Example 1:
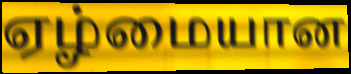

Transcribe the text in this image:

ஏழ்மையான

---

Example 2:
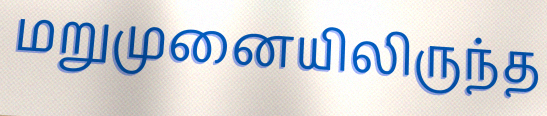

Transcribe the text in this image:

மறுமுனையிலிருந்த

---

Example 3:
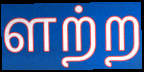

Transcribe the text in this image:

ளற்ற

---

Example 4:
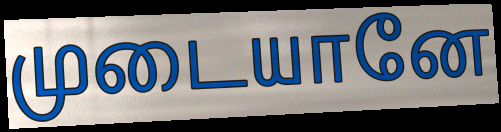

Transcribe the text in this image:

முடையானே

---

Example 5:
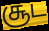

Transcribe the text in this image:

சூட